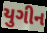
યુગીન